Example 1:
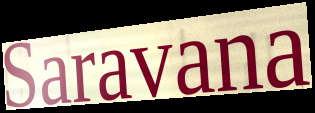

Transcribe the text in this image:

Saravana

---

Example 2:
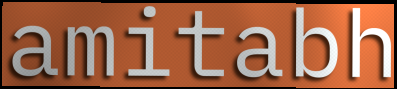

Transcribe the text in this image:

amitabh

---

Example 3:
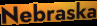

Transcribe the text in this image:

Nebraska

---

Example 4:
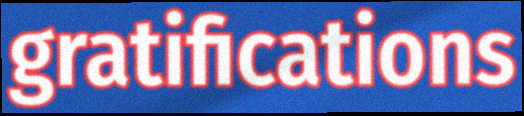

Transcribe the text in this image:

gratifications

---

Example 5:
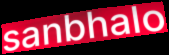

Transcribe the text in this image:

sanbhalo